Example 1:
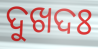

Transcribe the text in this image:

ଦୁଖଦଃ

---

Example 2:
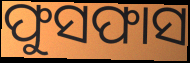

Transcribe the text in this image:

ଫୁସଫାସ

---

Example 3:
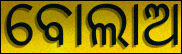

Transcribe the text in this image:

ବୋଲାଅ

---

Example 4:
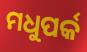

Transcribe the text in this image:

ମଧୁପର୍କ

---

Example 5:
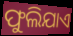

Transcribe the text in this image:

ଫୁଲିଯାଏ